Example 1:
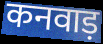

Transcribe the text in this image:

कनवाड़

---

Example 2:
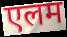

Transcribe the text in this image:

एलम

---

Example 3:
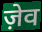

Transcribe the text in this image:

ज़ेव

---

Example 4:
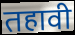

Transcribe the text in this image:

तहावी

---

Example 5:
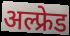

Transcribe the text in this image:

अल्फ्रेड